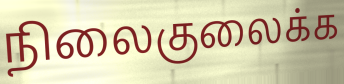
நிலைகுலைக்க